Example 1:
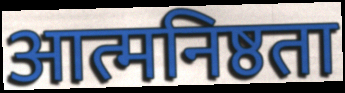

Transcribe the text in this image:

आत्मनिष्ठता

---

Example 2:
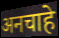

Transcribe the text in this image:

अनचाहे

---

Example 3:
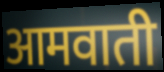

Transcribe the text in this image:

आमवाती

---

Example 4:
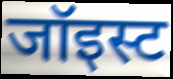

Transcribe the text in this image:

जॉइस्ट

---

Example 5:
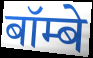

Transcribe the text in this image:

बॉम्‍बे